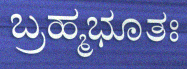
ಬ್ರಹ್ಮಭೂತಃ